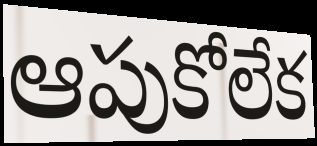
ఆపుకోలేక